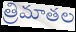
త్రిమాతల